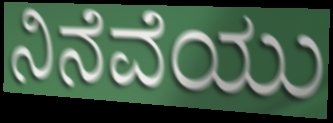
ನಿನೆವೆಯು